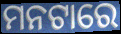
ମନଟାରେ